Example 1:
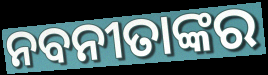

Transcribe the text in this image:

ନବନୀତାଙ୍କର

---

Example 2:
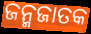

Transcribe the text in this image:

ଜନ୍ମଜାତକ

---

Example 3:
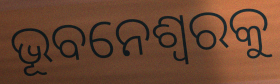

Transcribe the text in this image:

ଭୂବନେଶ୍ୱରକୁ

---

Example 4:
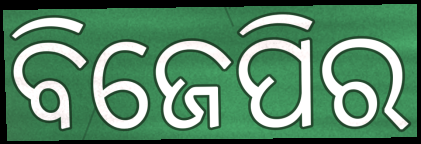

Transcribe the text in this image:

ବିଜେପିର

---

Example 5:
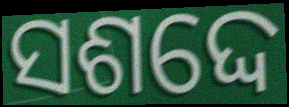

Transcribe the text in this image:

ସଶଦ୍ଦେ